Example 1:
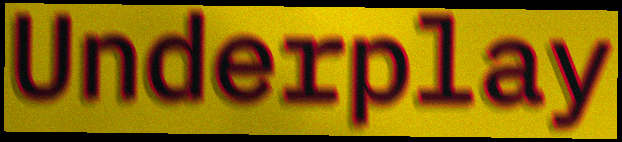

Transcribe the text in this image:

Underplay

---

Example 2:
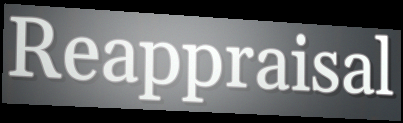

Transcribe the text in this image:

Reappraisal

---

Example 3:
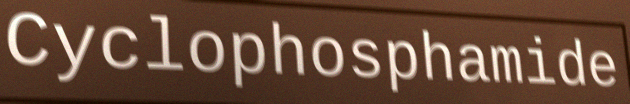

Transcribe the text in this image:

Cyclophosphamide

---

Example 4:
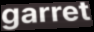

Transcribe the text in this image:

garret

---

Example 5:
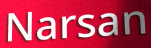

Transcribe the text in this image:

Narsan